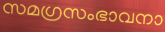
സമഗ്രസംഭാവനാ